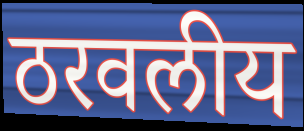
ठरवलीय